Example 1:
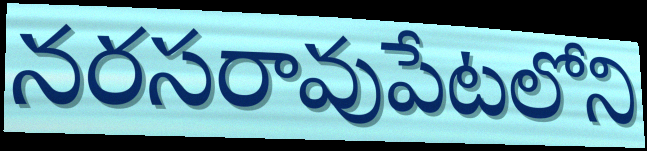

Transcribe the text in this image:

నరసరావుపేటలోని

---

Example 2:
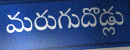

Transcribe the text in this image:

మరుగుదొడ్లు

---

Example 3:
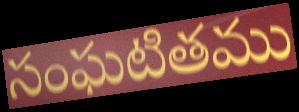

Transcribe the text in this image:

సంఘటితము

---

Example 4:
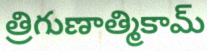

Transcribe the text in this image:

త్రిగుణాత్మికామ్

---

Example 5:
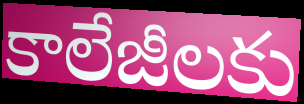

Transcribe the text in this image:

కాలేజీలకు